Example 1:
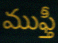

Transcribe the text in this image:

ముఫ్తీ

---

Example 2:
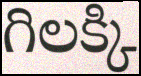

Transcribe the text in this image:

గిలక్కి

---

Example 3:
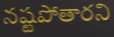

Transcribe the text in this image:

నష్టపోతారని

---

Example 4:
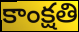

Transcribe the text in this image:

కాంక్షతి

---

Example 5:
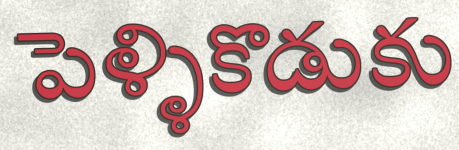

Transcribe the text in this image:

పెళ్ళికొడుకు